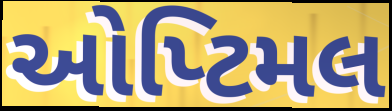
ઓપ્ટિમલ